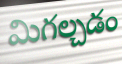
మిగల్చడం